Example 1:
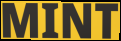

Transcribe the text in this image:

MINT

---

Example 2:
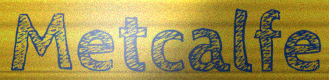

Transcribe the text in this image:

Metcalfe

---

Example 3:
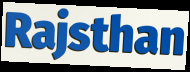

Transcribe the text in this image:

Rajsthan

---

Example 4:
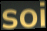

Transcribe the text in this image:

soi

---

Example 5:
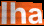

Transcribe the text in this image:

lha